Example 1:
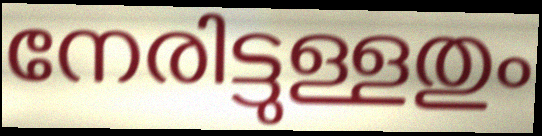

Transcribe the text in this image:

നേരിട്ടുള്ളതും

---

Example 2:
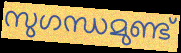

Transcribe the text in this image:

സുഗന്ധമുണ്ട്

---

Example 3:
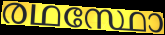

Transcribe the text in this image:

രഥസ്ഥോ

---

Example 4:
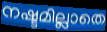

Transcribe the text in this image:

നഷ്ടമില്ലാതെ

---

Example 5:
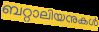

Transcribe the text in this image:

ബറ്റാലിയനുകൾ